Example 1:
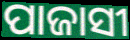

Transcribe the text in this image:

ପାଜାସୀ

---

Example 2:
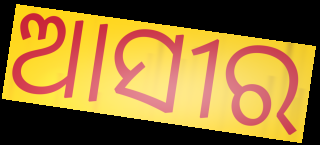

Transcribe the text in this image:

ଆସୀର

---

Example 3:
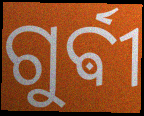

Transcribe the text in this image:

ଗୁର୍ଵୀ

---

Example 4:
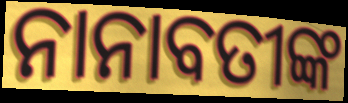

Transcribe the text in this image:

ନାନାବତୀଙ୍କ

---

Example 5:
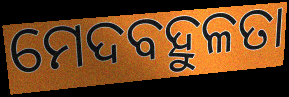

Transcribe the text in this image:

ମେଦବହୁଳତା